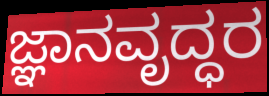
ಜ್ಞಾನವೃದ್ಧರ